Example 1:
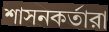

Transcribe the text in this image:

শাসনকর্তারা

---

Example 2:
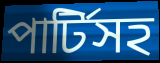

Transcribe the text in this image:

পার্টিসহ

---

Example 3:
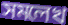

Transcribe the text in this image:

সমলেখ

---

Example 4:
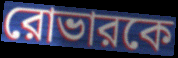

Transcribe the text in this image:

রোভারকে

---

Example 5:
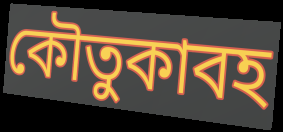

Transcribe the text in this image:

কৌতুকাবহ